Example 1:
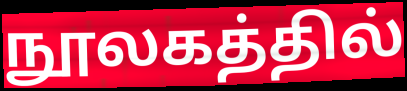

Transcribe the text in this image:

நூலகத்தில்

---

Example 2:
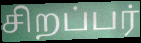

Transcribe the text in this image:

சிறப்பர்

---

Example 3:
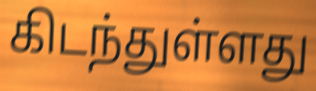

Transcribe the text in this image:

கிடந்துள்ளது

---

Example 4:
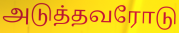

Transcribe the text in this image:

அடுத்தவரோடு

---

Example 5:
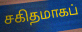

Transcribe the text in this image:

சகிதமாகப்